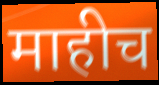
माहीच